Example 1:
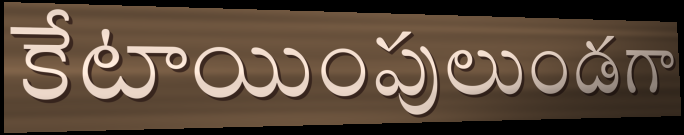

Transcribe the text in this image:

కేటాయింపులుండగా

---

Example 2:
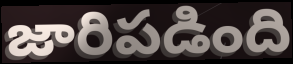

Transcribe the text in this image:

జారిపడింది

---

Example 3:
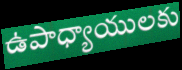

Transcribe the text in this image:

ఉపాధ్యాయులకు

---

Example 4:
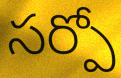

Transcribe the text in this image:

సర్పో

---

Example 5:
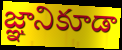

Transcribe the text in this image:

జ్ఞానికూడా